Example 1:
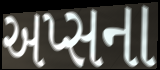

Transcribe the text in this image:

અપ્સના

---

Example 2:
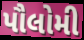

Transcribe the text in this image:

પૌલોમી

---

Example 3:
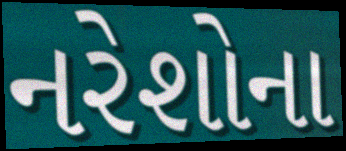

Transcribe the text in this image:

નરેશોના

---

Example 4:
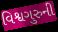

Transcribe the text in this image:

વિશ્વગુરુની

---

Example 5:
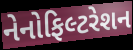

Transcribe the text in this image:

નેનોફિલ્ટરેશન